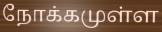
நோக்கமுள்ள